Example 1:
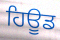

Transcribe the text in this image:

ਹਿਊਡ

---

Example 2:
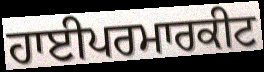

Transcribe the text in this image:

ਹਾਈਪਰਮਾਰਕੀਟ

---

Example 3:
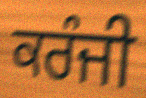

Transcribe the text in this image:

ਕਰੰਜੀ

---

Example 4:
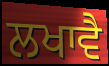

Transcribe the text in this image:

ਲਖਾਵੈ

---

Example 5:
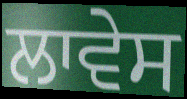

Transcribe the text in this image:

ਲਾਵੇਸ